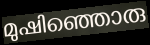
മുഷിഞ്ഞൊരു